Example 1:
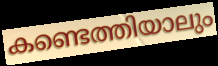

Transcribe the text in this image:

കണ്ടെത്തിയാലും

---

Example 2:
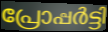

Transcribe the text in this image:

പ്രോപ്പർട്ടി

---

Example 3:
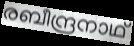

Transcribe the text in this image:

രബീന്ദ്രനാഥ്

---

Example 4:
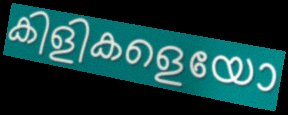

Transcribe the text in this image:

കിളികളെയോ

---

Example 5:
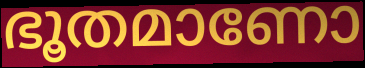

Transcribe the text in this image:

ഭൂതമാണോ